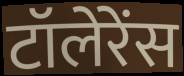
टॉलेरेंस